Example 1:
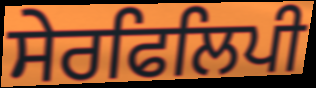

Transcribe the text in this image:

ਸੇਰਫਿਲਿਪੀ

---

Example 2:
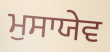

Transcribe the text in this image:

ਮੁਸਾਯੇਵ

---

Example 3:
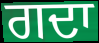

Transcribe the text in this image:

ਗਦਾ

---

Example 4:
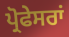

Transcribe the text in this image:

ਪ੍ਰੋਫੇਸਰਾਂ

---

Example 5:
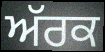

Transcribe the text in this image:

ਅੱਰਕ